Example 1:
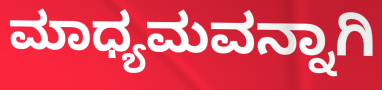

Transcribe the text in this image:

ಮಾಧ್ಯಮವನ್ನಾಗಿ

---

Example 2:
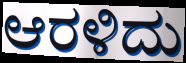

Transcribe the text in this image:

ಆರಳಿದು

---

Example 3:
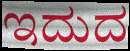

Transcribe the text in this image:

ಇದುದ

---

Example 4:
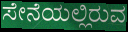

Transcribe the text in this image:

ಸೇನೆಯಲ್ಲಿರುವ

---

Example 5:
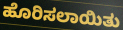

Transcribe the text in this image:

ಹೊರಿಸಲಾಯಿತು